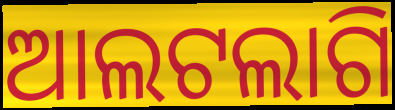
ଆଲଟଲାଗି